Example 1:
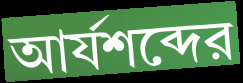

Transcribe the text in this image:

আর্যশব্দের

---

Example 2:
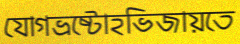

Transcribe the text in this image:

যোগভ্রষ্টোহভিজায়তে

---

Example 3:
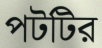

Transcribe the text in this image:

পটটির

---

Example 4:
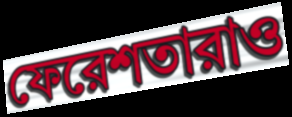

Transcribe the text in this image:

ফেরেশতারাও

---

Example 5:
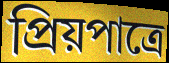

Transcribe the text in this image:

প্রিয়পাত্রে